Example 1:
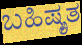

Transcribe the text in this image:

ಬಹಿಷ್ಕೃತ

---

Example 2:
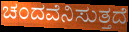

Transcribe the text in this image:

ಚಂದವೆನಿಸುತ್ತದೆ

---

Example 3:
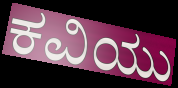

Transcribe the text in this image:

ಕವಿಯು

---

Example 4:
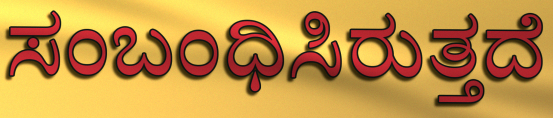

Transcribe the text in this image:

ಸಂಬಂಧಿಸಿರುತ್ತದೆ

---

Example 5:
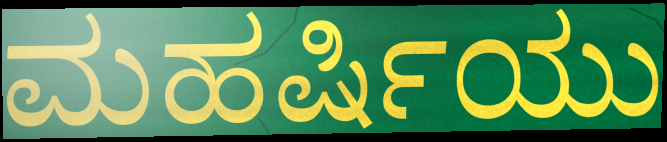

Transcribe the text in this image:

ಮಹರ್ಷಿಯು